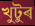
খুটুৰ